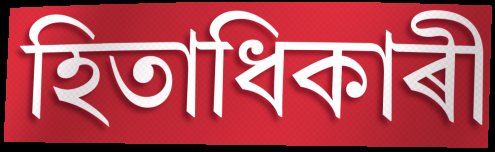
হিতাধিকাৰী